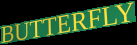
BUTTERFLY